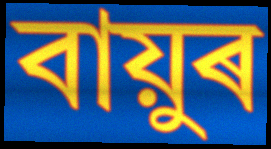
বায়ুৰ